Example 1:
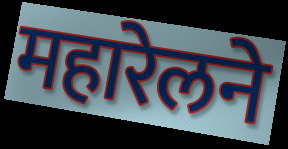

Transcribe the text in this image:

महारेलने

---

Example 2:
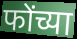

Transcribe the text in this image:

फोंच्या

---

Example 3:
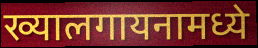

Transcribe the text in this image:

ख्यालगायनामध्ये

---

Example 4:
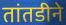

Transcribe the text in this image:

तांतडीने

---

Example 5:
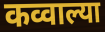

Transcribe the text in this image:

कव्वाल्या